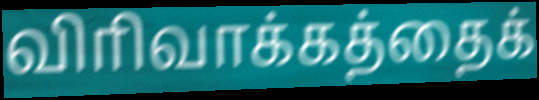
விரிவாக்கத்தைக்